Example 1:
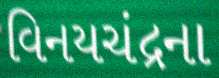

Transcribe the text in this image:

વિનયચંદ્રના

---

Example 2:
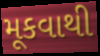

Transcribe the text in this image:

મૂકવાથી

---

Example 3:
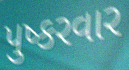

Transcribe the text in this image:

પુષ્કરવાર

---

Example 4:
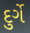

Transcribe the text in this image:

દુર્ગે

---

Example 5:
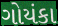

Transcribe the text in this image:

ગોયંકા